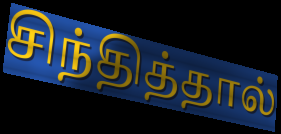
சிந்தித்தால்